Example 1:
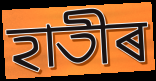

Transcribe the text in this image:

হাতীৰ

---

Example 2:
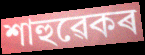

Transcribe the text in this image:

শাহুৱেকৰ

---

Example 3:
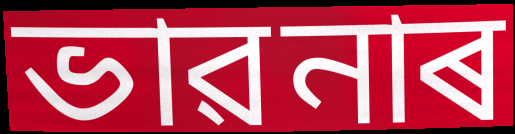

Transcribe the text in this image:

ভাৱনাৰ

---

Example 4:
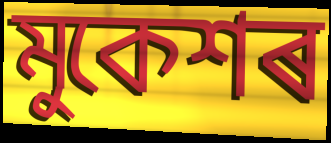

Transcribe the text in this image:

মুকেশৰ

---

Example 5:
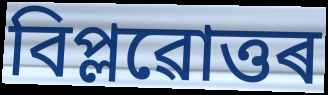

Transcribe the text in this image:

বিপ্লৱোত্তৰ